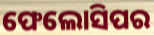
ଫେଲୋସିପର